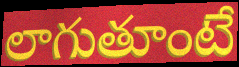
లాగుతూంటే